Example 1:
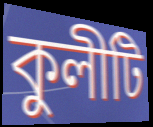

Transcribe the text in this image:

কুলীটি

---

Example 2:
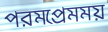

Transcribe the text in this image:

পরমপ্রেমময়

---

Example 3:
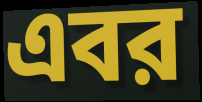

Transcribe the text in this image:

এবর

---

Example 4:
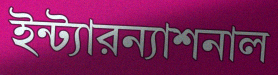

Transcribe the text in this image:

ইন্ট্যারন্যাশনাল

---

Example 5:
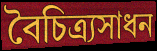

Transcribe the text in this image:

বৈচিত্র্যসাধন